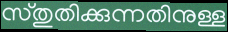
സ്തുതിക്കുന്നതിനുള്ള